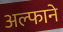
अल्फाने